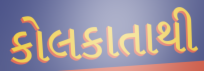
કોલકાતાથી